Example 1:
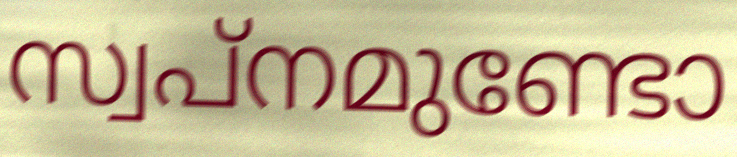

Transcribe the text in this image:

സ്വപ്നമുണ്ടോ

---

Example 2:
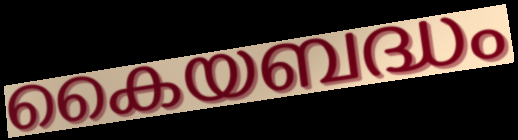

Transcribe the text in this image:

കൈയബദ്ധം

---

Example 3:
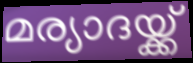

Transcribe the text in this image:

മര്യാദയ്ക്ക്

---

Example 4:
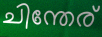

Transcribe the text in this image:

ചിന്തേര്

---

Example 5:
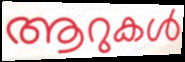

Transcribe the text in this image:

ആറുകൾ